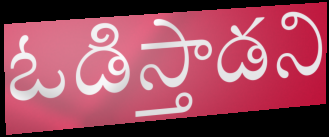
ఓడిస్తాడని